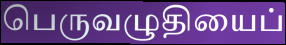
பெருவழுதியைப்